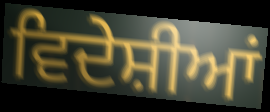
ਵਿਦੇਸ਼ੀਆਂ